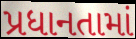
પ્રધાનતામાં